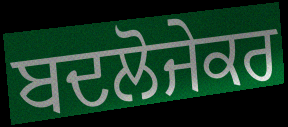
ਬਦਲੋਜੇਕਰ